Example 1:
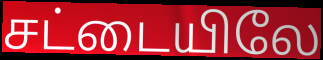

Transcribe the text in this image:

சட்டையிலே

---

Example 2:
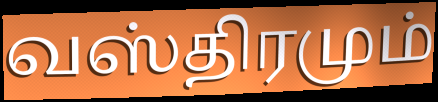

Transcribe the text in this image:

வஸ்திரமும்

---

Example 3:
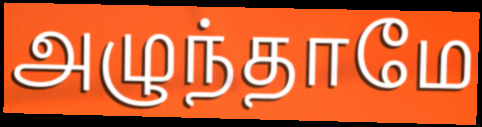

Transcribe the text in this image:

அழுந்தாமே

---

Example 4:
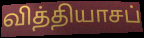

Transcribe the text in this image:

வித்தியாசப்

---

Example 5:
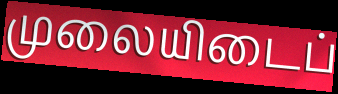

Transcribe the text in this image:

முலையிடைப்